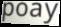
poay